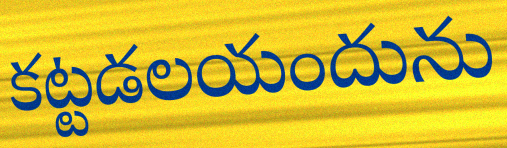
కట్టడలయందును